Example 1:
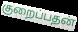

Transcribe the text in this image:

குறைப்பதன்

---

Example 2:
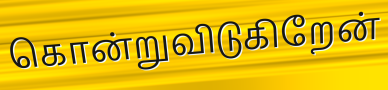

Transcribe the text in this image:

கொன்றுவிடுகிறேன்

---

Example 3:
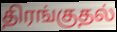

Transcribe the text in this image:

திரங்குதல்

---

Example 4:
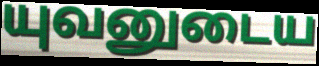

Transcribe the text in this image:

யுவனுடைய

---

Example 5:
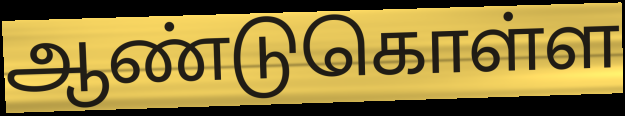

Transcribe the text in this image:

ஆண்டுகொள்ள